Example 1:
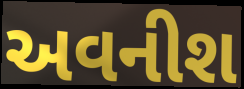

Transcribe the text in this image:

અવનીશ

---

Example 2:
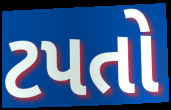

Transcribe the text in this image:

ટપતો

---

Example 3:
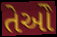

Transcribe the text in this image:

તેઓે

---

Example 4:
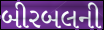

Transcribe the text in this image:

બીરબલની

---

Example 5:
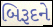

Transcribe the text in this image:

બિરૂદને